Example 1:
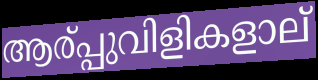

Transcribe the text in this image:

ആര്പ്പുവിളികളാല്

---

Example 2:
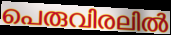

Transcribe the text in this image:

പെരുവിരലിൽ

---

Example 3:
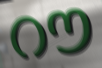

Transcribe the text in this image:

റൗ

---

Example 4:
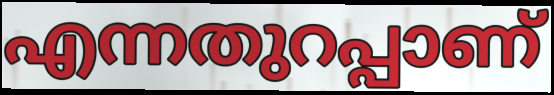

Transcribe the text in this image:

എന്നതുറപ്പാണ്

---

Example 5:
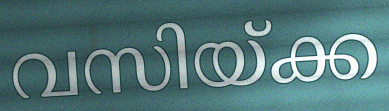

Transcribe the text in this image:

വസിയ്ക്ക